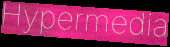
Hypermedia